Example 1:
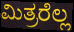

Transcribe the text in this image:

ಮಿತ್ರರೆಲ್ಲ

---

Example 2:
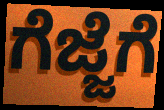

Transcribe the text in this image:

ಗೆಜ್ಜೆಗೆ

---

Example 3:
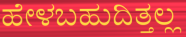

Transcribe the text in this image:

ಹೇಳಬಹುದಿತ್ತಲ್ಲ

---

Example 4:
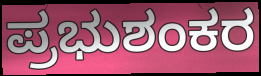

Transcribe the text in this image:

ಪ್ರಭುಶಂಕರ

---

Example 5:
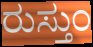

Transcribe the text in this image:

ರುಸ್ತುಂ